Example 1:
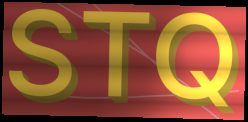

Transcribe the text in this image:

STQ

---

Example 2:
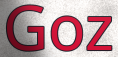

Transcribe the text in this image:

Goz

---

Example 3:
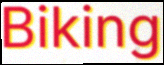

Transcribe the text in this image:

Biking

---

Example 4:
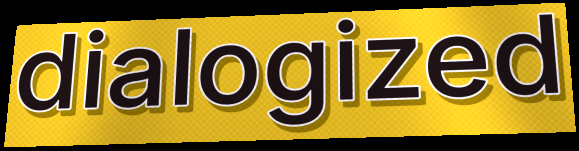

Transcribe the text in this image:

dialogized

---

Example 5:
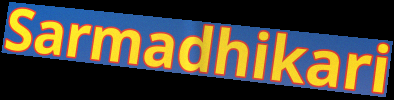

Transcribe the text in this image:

Sarmadhikari